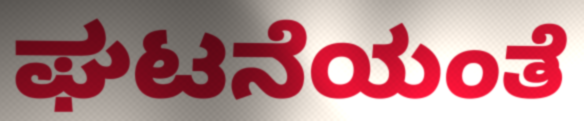
ಘಟನೆಯಂತೆ